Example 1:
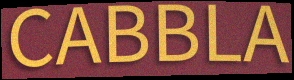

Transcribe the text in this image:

CABBLA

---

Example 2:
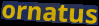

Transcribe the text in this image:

ornatus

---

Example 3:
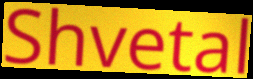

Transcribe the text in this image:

Shvetal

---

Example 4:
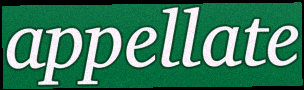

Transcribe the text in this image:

appellate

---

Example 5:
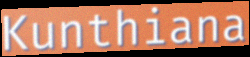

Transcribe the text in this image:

Kunthiana